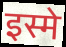
इस्मे